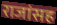
राजांसह